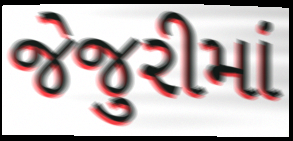
જેજુરીમાં